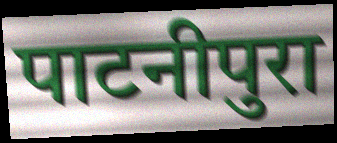
पाटनीपुरा